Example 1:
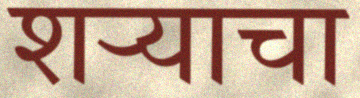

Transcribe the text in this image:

शर्‍याचा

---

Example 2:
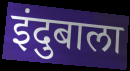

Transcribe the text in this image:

इंदुबाला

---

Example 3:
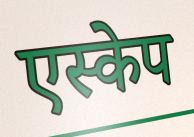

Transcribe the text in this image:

एस्केप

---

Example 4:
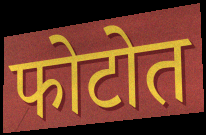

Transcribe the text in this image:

फोटोत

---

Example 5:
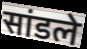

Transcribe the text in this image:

सांडले